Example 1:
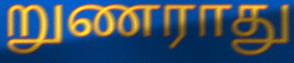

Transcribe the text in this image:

றுணராது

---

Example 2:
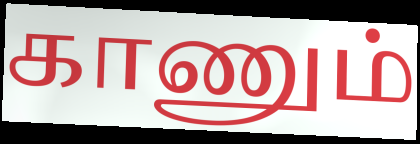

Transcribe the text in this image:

காணும்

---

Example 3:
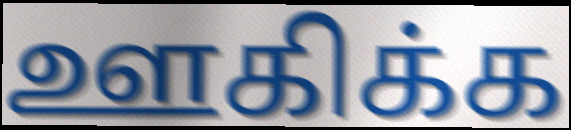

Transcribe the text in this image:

ஊகிக்க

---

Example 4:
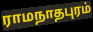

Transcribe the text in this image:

ராமநாதபுரம்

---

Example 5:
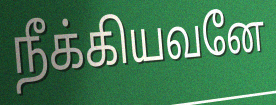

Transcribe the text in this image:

நீக்கியவனே